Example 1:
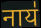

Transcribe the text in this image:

नाय॑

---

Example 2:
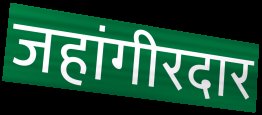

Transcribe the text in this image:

जहांगीरदार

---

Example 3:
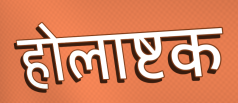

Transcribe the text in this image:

होलाष्टक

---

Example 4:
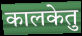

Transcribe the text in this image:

कालकेतु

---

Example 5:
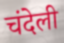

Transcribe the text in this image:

चंदेली